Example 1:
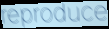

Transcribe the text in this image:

reproduce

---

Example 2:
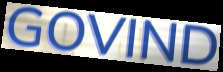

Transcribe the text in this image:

GOVIND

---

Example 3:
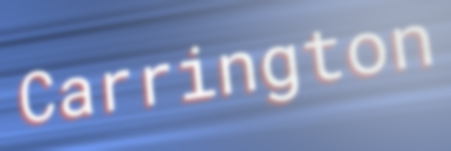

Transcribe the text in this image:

Carrington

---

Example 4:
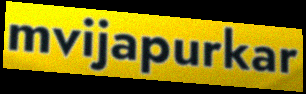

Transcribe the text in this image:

mvijapurkar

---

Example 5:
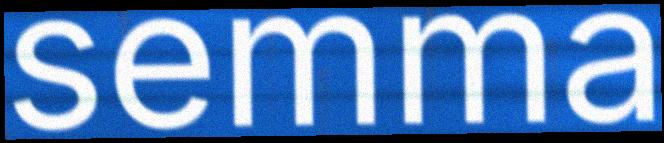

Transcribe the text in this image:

semma